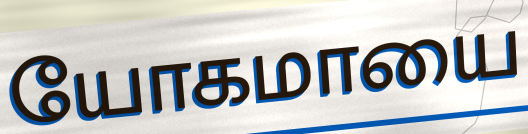
யோகமாயை